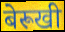
बेरूखी